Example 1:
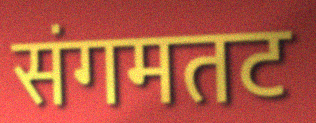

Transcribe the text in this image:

संगमतट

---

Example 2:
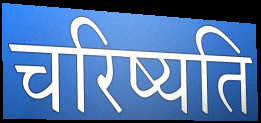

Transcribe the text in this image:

चरिष्यति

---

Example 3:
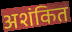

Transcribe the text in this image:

अशंकित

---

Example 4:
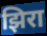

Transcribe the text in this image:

झिरा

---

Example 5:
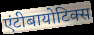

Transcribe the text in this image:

एंटीबायोटिक्स